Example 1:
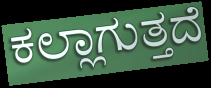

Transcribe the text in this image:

ಕಲ್ಲಾಗುತ್ತದೆ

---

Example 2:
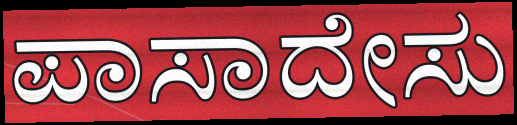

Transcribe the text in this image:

ಪಾಸಾದೇಸು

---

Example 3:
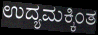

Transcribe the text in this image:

ಉದ್ಯಮಕ್ಕಿಂತ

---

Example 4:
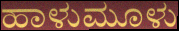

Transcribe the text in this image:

ಹಾಳುಮೂಳು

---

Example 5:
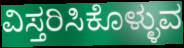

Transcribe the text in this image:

ವಿಸ್ತರಿಸಿಕೊಳ್ಳುವ